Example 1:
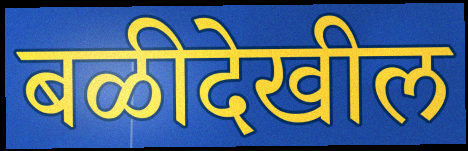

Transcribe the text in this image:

बळीदेखील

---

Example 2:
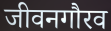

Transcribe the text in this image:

जीवनगौरव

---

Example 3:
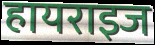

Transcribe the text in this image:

हायराइज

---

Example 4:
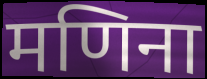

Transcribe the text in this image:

मणिना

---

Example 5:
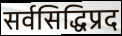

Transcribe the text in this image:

सर्वसिद्धिप्रद